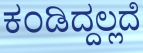
ಕಂಡಿದ್ದಲ್ಲದೆ